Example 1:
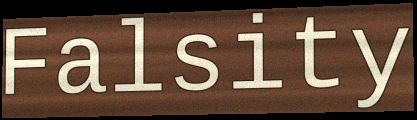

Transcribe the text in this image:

Falsity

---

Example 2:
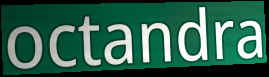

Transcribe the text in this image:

octandra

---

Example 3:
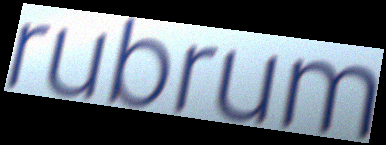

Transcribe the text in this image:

rubrum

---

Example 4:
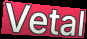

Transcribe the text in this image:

Vetal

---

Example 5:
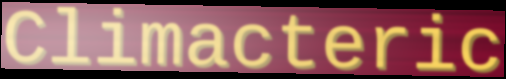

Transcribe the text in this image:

Climacteric